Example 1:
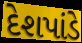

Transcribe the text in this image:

દેશપાંડે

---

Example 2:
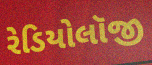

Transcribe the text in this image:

રેડિયોલૉજી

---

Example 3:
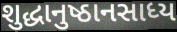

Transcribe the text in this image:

શુદ્ધાનુષ્ઠાનસાધ્ય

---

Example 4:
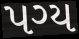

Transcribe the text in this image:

પગ્ય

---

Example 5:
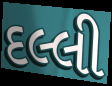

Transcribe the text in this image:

દલ્લી